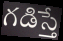
గడిస్తే